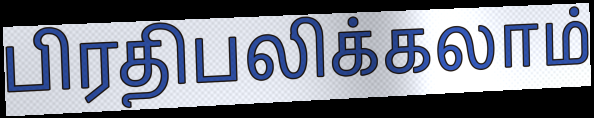
பிரதிபலிக்கலாம்